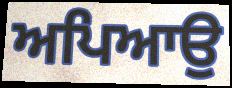
ਅਪਿਆਉ